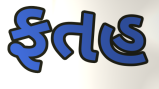
ફતહ